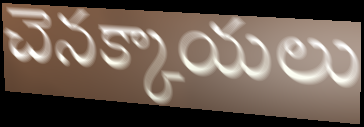
చెనక్కాయలు